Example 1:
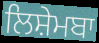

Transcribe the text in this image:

ਲਿਸ਼ੇਮਬਾ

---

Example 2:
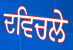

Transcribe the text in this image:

ਦਵਿਚਲੇ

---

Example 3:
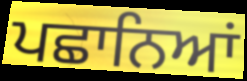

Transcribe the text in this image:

ਪਛਾਨਿਆਂ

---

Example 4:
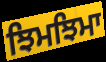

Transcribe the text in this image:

ਝਿਮਝਿਮਾ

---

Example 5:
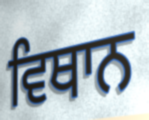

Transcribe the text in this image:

ਵਿਥਾਨ